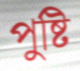
পুষ্টি